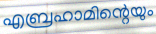
എബ്രഹാമിന്റെയും